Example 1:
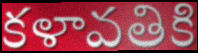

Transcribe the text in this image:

కళావతికి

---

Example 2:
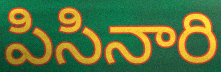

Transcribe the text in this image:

పిసినారి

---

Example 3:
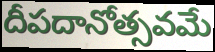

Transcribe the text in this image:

దీపదానోత్సవమే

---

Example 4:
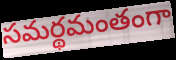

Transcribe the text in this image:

సమర్థమంతంగా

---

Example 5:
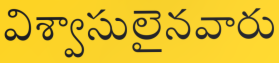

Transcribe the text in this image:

విశ్వాసులైనవారు